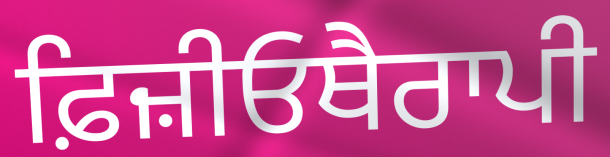
ਫ਼ਿਜ਼ੀਓਥੈਰਾਪੀ